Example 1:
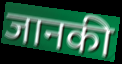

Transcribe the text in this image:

जानकी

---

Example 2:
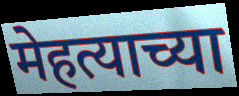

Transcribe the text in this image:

मेहत्याच्या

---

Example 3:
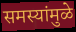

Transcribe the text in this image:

समस्यांमुळे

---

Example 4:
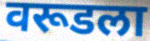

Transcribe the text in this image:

वरूडला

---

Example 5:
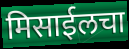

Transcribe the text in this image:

मिसाईलचा